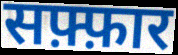
सफ़्फ़ार